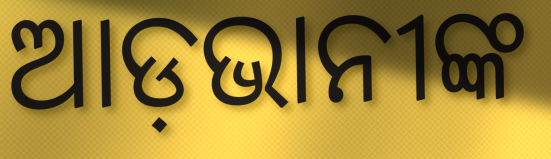
ଆଡ଼ଭାନୀଙ୍କ